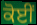
ਕੋਈਂ